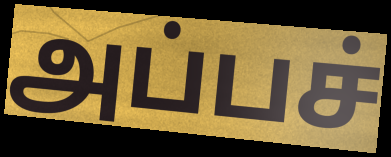
அப்பச்